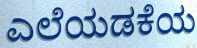
ಎಲೆಯಡಕೆಯ